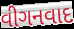
વીગનવાદ